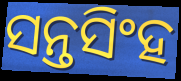
ସନ୍ତସିଂହ